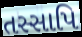
તસ્સાપિ